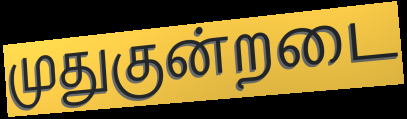
முதுகுன்றடை